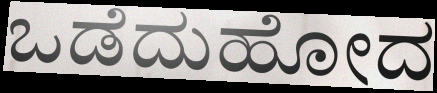
ಒಡೆದುಹೋದ